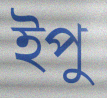
ইপু